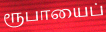
ரூபாயைப்